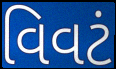
વિવટં